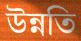
উন্নতি